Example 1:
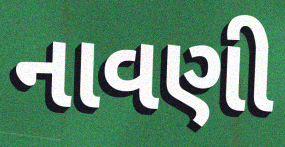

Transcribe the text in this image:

નાવણી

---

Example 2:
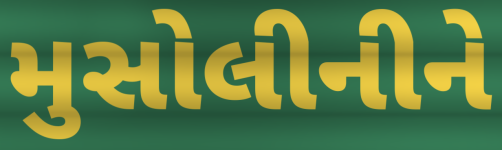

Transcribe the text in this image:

મુસોલીનીને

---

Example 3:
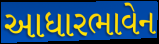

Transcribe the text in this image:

આધારભાવેન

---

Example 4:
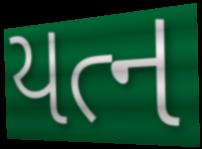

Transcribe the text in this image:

યત્ન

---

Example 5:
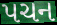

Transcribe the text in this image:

પચન